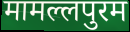
मामल्लपुरम